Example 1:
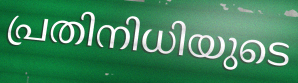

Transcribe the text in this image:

പ്രതിനിധിയുടെ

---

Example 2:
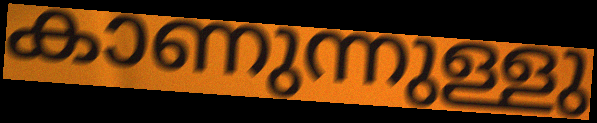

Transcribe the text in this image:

കാണുന്നുള്ളു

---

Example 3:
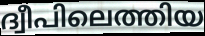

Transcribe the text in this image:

ദ്വീപിലെത്തിയ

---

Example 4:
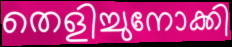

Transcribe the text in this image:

തെളിച്ചുനോക്കി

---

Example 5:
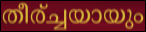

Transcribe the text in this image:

തീര്ച്ചയായും